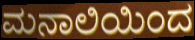
ಮನಾಲಿಯಿಂದ